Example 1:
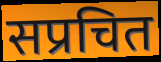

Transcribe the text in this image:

सप्रचित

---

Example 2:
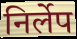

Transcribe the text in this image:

निर्लेप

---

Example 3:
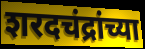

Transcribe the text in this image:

शरदचंद्रांच्या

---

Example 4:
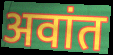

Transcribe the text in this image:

अवांत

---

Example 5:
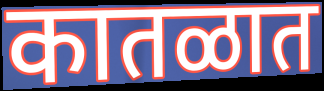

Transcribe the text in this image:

कातळात